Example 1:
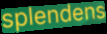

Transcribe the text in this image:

splendens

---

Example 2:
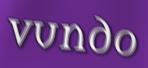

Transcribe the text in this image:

vundo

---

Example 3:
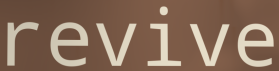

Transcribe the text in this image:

revive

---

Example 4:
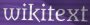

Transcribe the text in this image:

wikitext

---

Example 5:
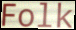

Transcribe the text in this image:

Folk